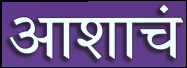
आशाचं